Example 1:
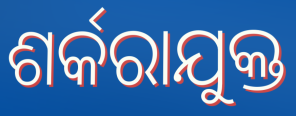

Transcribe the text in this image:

ଶର୍କରାଯୁକ୍ତ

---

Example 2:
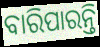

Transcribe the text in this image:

ବାରିପାରନ୍ତି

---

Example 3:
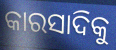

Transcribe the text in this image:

କାରସାଦିକୁ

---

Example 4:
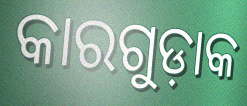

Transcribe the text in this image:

କାରଗୁଡ଼ାକ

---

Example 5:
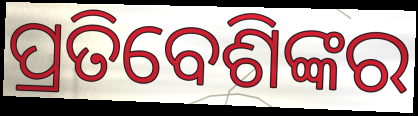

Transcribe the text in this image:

ପ୍ରତିବେଶିଙ୍କର